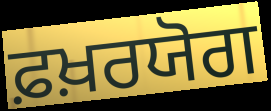
ਫ਼ਖ਼ਰਯੋਗ